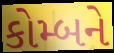
કોમ્બને